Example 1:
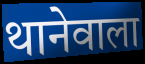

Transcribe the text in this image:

थानेवाला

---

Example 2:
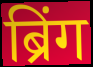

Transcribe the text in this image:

ब्रिंग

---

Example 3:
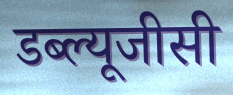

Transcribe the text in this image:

डब्ल्यूजीसी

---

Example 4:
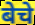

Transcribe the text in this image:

बेचे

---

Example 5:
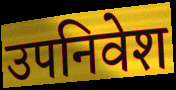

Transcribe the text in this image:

उपनिवेश